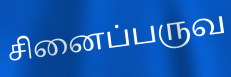
சினைப்பருவ